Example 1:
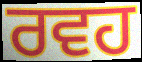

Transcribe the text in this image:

ਰਵਹ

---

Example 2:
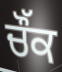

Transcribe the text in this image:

ਚੌੱਕ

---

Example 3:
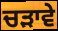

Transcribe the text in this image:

ਚੜਾਵੇ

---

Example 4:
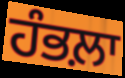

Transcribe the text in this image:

ਹੰਭਲ਼ਾ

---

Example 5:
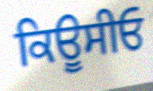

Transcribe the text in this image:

ਕਿਊਸੀਓ